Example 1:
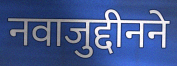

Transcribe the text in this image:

नवाजुद्दीनने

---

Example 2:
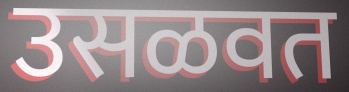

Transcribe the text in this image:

उसळवत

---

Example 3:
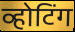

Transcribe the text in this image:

व्होटिंग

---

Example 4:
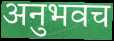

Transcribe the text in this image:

अनुभवच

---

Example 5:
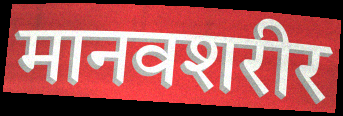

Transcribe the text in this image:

मानवशरीर